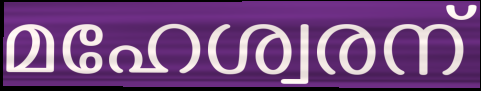
മഹേശ്വരന്